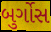
બુર્ગોસ